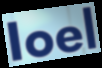
Ioel